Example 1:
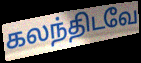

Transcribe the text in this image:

கலந்திடவே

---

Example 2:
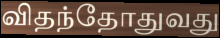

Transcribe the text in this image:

விதந்தோதுவது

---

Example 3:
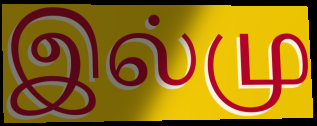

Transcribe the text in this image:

இல்மு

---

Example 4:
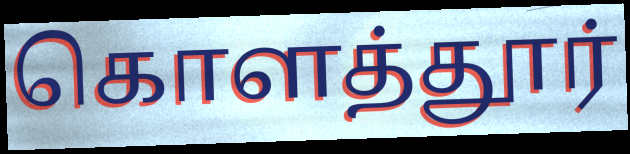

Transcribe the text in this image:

கொளத்தூர்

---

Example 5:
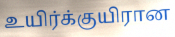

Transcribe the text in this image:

உயிர்க்குயிரான